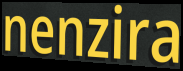
nenzira